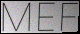
MEF